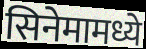
सिनेमामध्ये